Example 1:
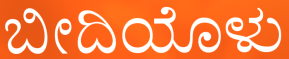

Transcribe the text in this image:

ಬೀದಿಯೊಳು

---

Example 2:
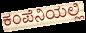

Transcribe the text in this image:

ಕಂಪೆನಿಯಲ್ಲಿ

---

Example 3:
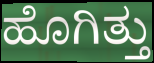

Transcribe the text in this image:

ಹೊಗಿತ್ತು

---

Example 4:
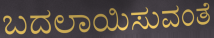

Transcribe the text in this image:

ಬದಲಾಯಿಸುವಂತೆ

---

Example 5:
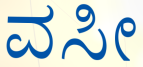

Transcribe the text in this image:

ವಸೀ